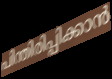
പിന്തിരിപ്പിക്കാൻ